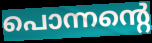
പൊന്നന്റെ